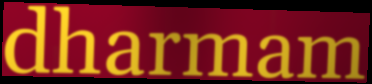
dharmam